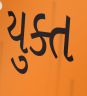
યુક્ત